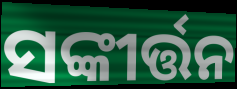
ସଙ୍କୀର୍ତ୍ତନ